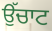
ਉੱਚਾਟ